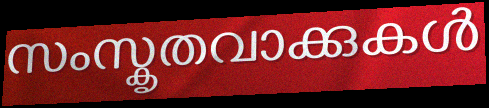
സംസ്കൃതവാക്കുകൾ